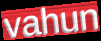
vahun